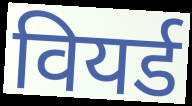
वियर्ड